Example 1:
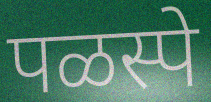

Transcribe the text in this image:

पळस्पे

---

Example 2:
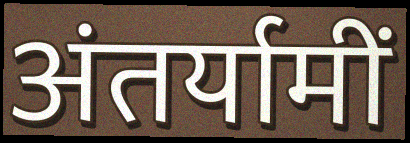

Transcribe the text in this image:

अंतर्यामीं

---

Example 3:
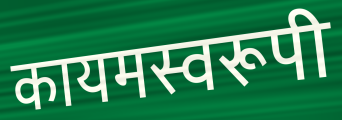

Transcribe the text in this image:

कायमस्वरूपी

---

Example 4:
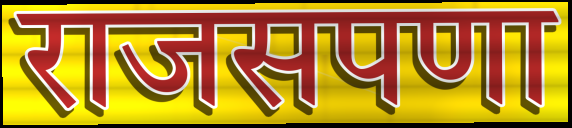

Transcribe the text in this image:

राजसपणा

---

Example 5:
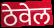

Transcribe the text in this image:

ठेवेल